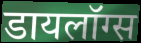
डायलॉग्स